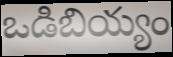
ఒడిబియ్యం